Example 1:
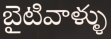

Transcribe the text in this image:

బైటివాళ్ళు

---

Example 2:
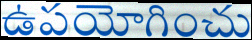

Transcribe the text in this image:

ఉపయోగించు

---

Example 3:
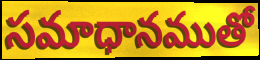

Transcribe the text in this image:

సమాధానముతో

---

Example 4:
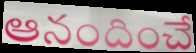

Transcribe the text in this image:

ఆనందించే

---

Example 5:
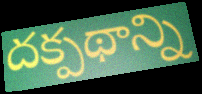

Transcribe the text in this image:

దక్పథాన్ని